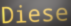
Diese